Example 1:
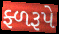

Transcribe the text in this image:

ફ્ળરૂપે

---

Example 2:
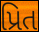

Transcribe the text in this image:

પ્રિત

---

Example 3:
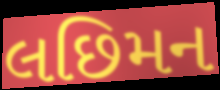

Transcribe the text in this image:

લછિમન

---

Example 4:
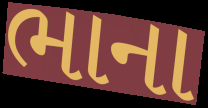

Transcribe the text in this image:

ભાના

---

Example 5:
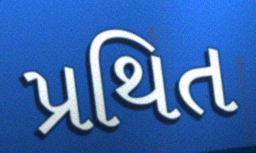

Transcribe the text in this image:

પ્રથિત